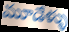
మూడేళ్ళు